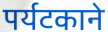
पर्यटकाने